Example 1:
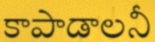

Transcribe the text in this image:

కాపాడాలనీ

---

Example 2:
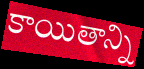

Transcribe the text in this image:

కాయితాన్ని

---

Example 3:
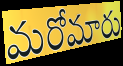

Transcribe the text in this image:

మరోమారు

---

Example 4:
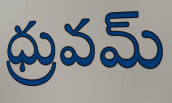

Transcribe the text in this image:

ధ్రువమ్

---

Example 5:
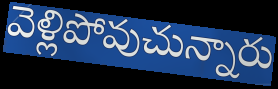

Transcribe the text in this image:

వెళ్లిపోవుచున్నారు